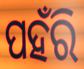
ପହଁରି